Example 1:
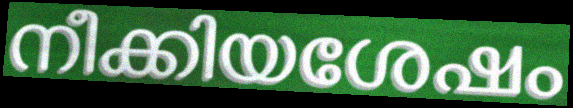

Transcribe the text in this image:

നീക്കിയശേഷം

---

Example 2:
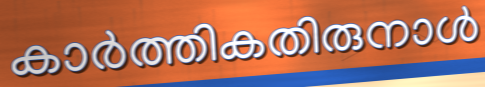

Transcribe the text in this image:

കാർത്തികതിരുനാൾ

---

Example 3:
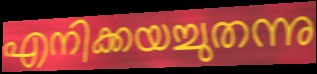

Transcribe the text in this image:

എനിക്കയച്ചുതന്നു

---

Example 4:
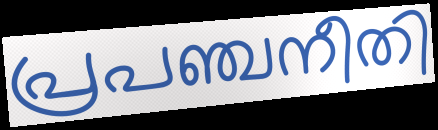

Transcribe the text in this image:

പ്രപഞ്ചനീതി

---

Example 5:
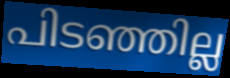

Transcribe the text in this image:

പിടഞ്ഞില്ല